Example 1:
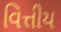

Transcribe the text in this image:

વિત્તીય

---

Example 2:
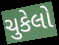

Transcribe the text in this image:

ચુકેલો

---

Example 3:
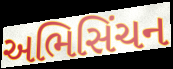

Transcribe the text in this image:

અભિસિંચન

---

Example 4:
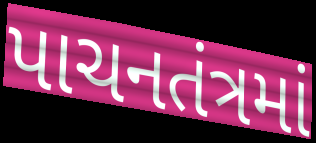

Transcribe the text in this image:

પાચનતંત્રમાં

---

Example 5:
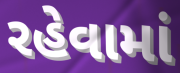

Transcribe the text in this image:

રહેવામાં